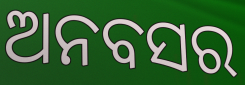
ଅନବସର